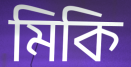
মিকি